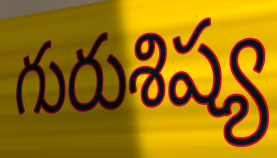
గురుశిష్య